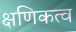
क्षणिकत्व